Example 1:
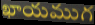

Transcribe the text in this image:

ఖాయముగ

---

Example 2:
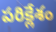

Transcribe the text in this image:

పరిక్లేశం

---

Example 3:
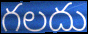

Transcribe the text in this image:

గలదు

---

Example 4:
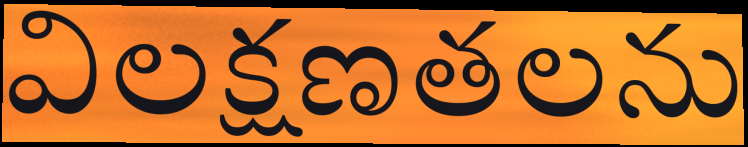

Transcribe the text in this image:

విలక్షణతలను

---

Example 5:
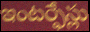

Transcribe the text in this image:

ఇంటర్ఫేస్లు